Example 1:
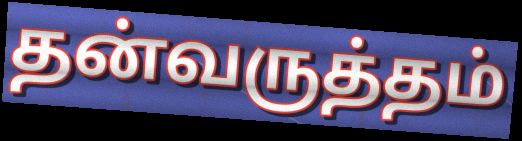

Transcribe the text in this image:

தன்வருத்தம்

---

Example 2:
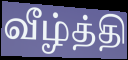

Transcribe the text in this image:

வீழ்த்தி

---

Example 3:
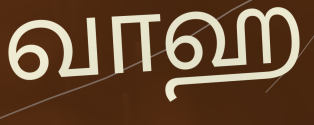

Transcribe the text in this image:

வாஹ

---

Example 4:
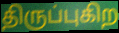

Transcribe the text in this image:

திருப்புகிற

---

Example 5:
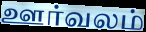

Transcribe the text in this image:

ஊர்வலம்